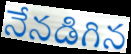
నేనడిగిన